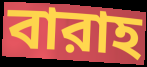
বারাহ